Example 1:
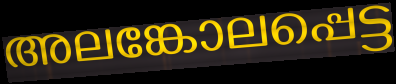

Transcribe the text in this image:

അലങ്കോലപ്പെട്ട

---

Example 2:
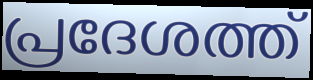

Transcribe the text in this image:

പ്രദേശത്ത്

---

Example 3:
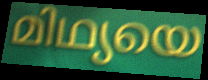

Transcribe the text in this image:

മിഥ്യയെ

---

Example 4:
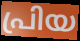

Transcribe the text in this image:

പ്രിയ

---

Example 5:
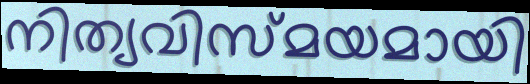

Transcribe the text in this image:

നിത്യവിസ്മയമായി